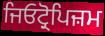
ਜਿਓਟ੍ਰੋਪਿਜ਼ਮ